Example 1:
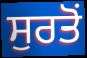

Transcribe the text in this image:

ਸੁਰਤੋਂ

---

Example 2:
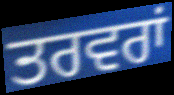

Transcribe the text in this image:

ਤਰਵਰਾਂ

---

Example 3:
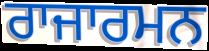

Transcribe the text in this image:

ਰਾਜਾਰਮਨ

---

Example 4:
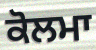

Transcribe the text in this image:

ਕੋਲਮਾ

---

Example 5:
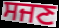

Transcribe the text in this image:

ਸਜਣ